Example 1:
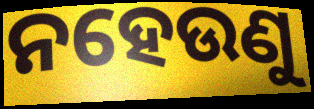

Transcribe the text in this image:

ନହେଉଣୁ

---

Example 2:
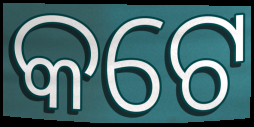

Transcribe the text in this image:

କଟେ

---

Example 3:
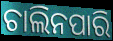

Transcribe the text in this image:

ଚାଲିନପାରି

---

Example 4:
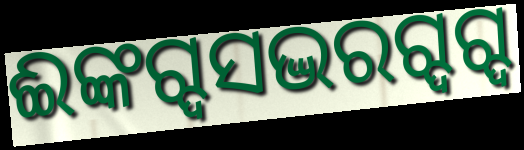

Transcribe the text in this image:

ଈଙ୍କଗ୍ଦସଦ୍ଭରଗ୍ଦଗ୍ଦ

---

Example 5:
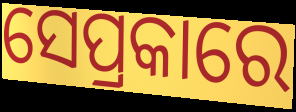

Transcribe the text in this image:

ସେପ୍ରକାରେ